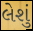
લેશું